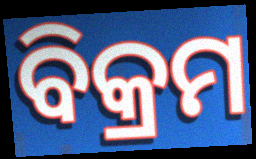
ବିକ୍ରମ